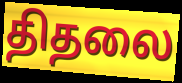
திதலை